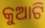
କୁଆଟି